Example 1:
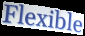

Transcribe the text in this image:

Flexible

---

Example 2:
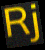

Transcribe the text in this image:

Rj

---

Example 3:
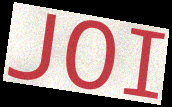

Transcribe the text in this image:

JOI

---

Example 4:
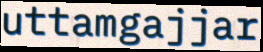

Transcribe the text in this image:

uttamgajjar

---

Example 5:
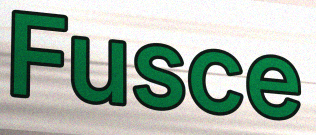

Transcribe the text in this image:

Fusce